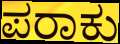
ಪರಾಕು